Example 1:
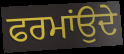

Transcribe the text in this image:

ਫਰਮਾਂਉਦੇ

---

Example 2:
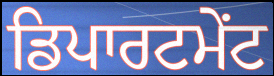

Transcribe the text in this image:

ਡਿਪਾਰਟਮੇਂਟ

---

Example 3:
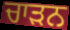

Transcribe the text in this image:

ਚਾੜਨ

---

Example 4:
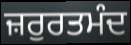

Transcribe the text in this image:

ਜ਼ਰੁਰਤਮੰਦ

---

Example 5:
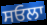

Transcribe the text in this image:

ਸਓਲਾ